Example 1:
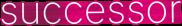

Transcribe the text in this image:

successor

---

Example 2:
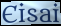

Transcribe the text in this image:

Eisai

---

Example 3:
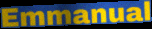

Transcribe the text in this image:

Emmanual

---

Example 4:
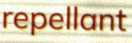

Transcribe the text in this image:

repellant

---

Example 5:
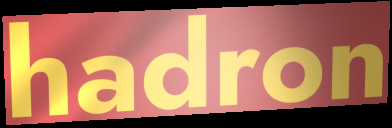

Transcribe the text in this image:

hadron